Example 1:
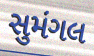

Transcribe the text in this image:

સુમંગલ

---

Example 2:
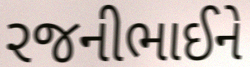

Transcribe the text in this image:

રજનીભાઈને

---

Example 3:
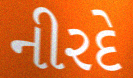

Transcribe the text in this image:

નીરદે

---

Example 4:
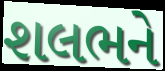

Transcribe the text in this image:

શલભને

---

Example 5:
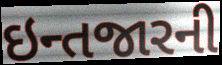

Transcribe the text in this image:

ઇન્તજારની